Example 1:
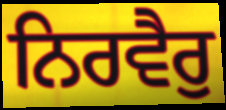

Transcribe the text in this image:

ਨਿਰਵੈਰੁ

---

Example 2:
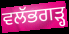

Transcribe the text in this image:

ਵਲੱਭਗੜ੍ਹ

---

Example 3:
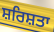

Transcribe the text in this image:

ਸ਼ਰਿਸ਼ਤਾ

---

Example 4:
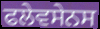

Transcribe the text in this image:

ਫਲੇਵਸੇਨਸ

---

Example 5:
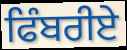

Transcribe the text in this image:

ਫਿੰਬਰੀਏ